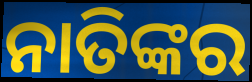
ନାତିଙ୍କର